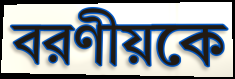
বরণীয়কে